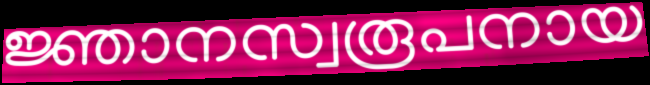
ജ്ഞാനസ്വരൂപനായ